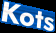
Kots